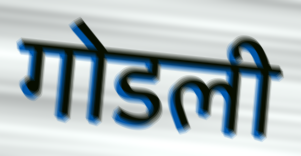
गोडली